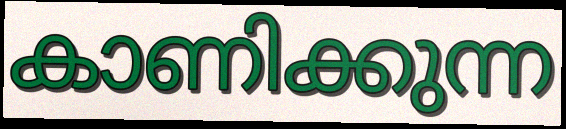
കാണിക്കുന്ന